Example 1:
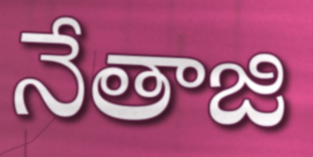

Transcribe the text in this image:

నేతాజి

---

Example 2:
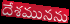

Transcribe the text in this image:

దేశమునను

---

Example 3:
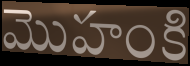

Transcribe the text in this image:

మొహంకి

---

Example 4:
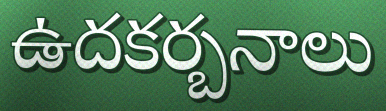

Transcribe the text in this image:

ఉదకర్బనాలు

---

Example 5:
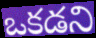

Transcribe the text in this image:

ఒకడని